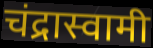
चंद्रास्वामी